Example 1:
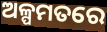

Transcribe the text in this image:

ଅଳ୍ପମତରେ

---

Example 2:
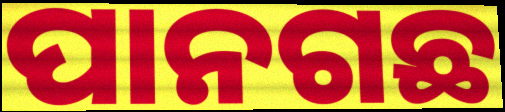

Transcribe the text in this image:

ପାନଗଛ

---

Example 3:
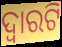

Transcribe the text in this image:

ଦ୍ୱାରଟି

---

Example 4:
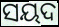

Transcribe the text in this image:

ସୟଦ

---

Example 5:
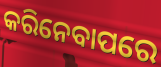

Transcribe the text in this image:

କରିନେବାପରେ